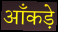
आँकड़े